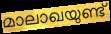
മാലാഖയുണ്ട്